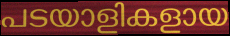
പടയാളികളായ